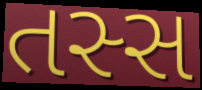
તસ્સ